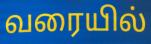
வரையில்